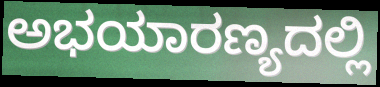
ಅಭಯಾರಣ್ಯದಲ್ಲಿ